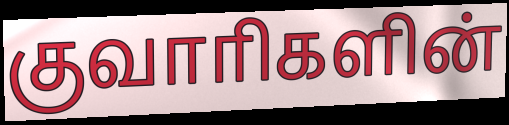
குவாரிகளின்